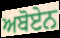
ਅਬੋਏਨ